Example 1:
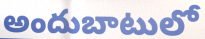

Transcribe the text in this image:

అందుబాటులో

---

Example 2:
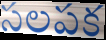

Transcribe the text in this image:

సలపక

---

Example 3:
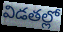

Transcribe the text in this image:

విడతల్లో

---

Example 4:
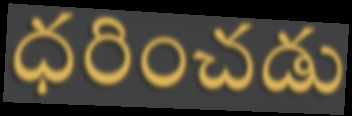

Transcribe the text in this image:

ధరించడు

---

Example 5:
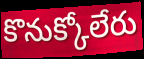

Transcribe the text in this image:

కొనుక్కోలేరు